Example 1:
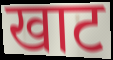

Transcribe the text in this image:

खाट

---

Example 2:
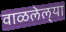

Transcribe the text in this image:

वाळलेल्या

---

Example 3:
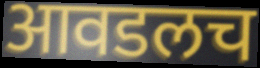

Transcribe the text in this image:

आवडलच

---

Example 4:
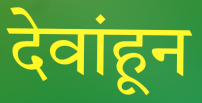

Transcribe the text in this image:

देवांहून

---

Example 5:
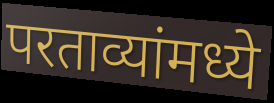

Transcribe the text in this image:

परताव्यांमध्ये